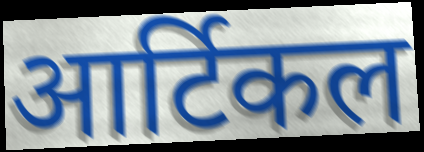
आर्टिकल